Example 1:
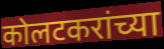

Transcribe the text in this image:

कोलटकरांच्या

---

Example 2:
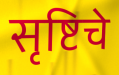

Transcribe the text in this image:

सृष्टिचे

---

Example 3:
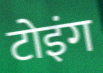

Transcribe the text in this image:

टोइंग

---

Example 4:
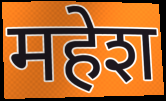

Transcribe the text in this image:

महेश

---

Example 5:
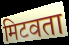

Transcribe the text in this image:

मिटवता